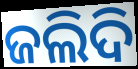
ଜଲିଦି